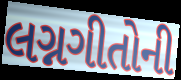
લગ્નગીતોની